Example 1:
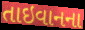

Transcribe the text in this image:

તાઇવાનના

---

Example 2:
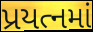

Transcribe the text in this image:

પ્રયત્નમાં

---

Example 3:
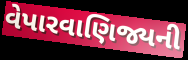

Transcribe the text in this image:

વેપારવાણિજ્યની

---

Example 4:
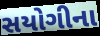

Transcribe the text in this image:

સયોગીના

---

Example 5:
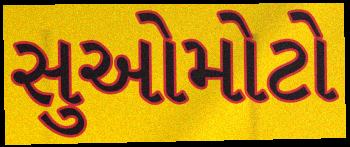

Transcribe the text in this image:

સુઓમોટો